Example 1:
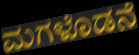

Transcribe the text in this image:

ಮಗಳೊಡನೆ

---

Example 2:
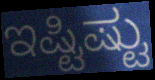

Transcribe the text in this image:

ಇಷ್ಟಿಷ್ಟು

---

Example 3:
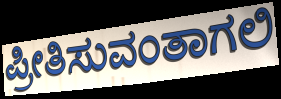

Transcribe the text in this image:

ಪ್ರೀತಿಸುವಂತಾಗಲಿ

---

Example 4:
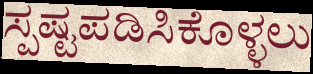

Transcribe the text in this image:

ಸ್ಪಷ್ಟಪಡಿಸಿಕೊಳ್ಳಲು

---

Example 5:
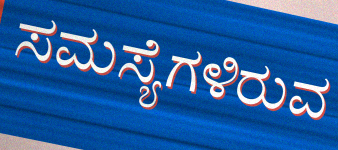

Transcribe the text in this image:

ಸಮಸ್ಯೆಗಳಿರುವ